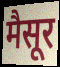
मैसूर